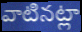
వాటినట్లా